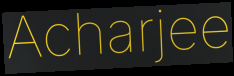
Acharjee